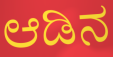
ಆಡಿನ